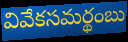
వివేకసమర్థంబు